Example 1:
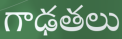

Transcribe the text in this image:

గాఢతలు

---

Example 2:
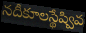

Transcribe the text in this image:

నదీకూలస్థేష్వివ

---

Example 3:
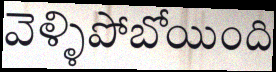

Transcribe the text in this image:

వెళ్ళిపోబోయింది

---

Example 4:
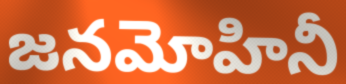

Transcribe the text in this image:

జనమోహినీ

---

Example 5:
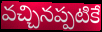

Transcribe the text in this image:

వచ్చినప్పటికే